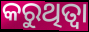
କରୁଥିତ୍ବା